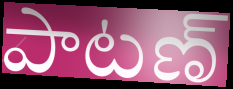
పాటణ్